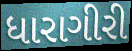
ધારાગીરી